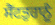
ਸੈੱਟਤੁਹਾਨੂੰ